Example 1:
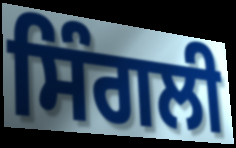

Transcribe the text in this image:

ਸਿੰਗਲੀ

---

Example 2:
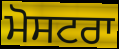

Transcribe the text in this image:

ਮੋਸਟਰਾ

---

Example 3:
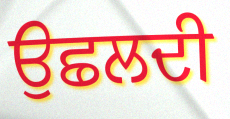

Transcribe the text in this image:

ਉਛਲਦੀ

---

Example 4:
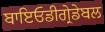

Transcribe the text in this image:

ਬਾਇਓਡੀਗ੍ਰੇਡੇਬਲ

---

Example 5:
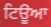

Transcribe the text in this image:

ਟਿਊਆ